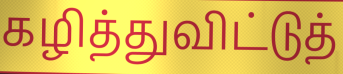
கழித்துவிட்டுத்